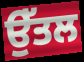
ਉੱਤਲ